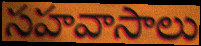
సహవాసాలు